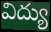
విద్యు